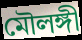
মৌলঙ্গী